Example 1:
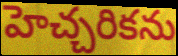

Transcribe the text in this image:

హెచ్చరికను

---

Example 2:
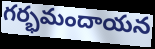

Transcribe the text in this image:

గర్భమందాయన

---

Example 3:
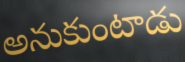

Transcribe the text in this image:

అనుకుంటాడు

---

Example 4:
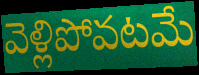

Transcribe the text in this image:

వెళ్లిపోవటమే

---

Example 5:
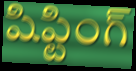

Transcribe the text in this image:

షిప్టింగ్